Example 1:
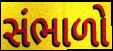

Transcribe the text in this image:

સંભાળો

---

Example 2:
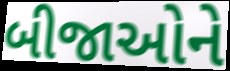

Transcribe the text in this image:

બીજાઓને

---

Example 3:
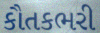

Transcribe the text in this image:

કૌતકભરી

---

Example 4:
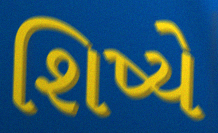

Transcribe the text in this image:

શિષ્યે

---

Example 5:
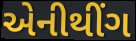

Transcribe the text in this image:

એનીથીંગ